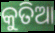
କୁତିଆ